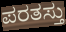
ಪರತಸ್ತು